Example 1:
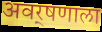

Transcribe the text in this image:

अवर्षणाला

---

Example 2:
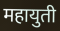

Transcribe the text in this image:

महायुती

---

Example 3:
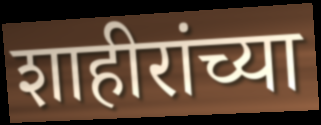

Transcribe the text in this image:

शाहीरांच्या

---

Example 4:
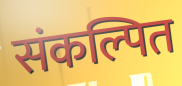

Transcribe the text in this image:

संकल्पित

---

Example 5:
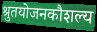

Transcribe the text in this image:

श्रुतयोजनकौशल्य